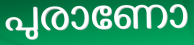
പുരാണോ